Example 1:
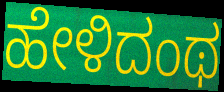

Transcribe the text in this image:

ಹೇಳಿದಂಥ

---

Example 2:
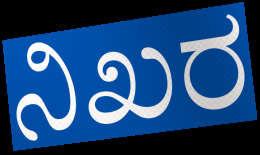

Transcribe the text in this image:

ನಿಖರ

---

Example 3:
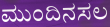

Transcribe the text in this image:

ಮುಂದಿನಸಲ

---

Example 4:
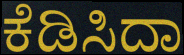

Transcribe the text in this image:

ಕೆಡಿಸಿದಾ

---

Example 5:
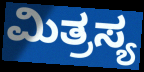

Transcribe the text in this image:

ಮಿತ್ರಸ್ಯ